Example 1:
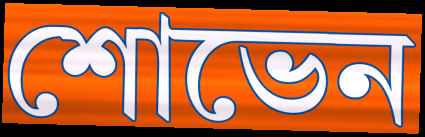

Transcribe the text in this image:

শোভেন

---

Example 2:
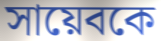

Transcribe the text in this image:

সায়েবকে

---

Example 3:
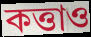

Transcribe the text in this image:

কত্তাও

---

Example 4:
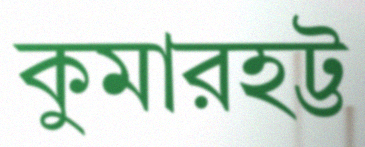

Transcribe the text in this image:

কুমারহট্ট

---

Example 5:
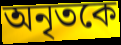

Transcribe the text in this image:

অনৃতকে